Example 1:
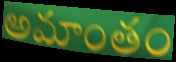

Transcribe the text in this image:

అమాంతం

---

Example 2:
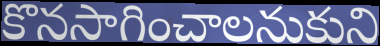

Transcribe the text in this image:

కొనసాగించాలనుకుని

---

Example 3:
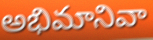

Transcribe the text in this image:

అభిమానివా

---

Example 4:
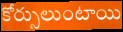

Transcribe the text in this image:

కోర్సులుంటాయి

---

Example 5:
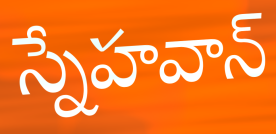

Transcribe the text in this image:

స్నేహవాన్